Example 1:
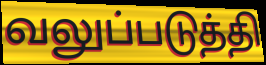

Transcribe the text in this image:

வலுப்படுத்தி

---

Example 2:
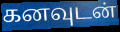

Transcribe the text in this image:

கனவுடன்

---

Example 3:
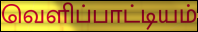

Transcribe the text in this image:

வெளிப்பாட்டியம்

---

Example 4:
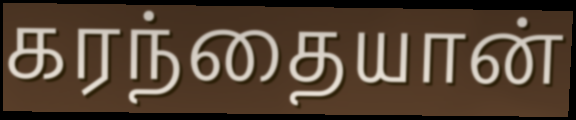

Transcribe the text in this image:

கரந்தையான்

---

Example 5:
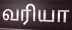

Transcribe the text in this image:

வரியா